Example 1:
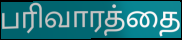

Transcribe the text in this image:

பரிவாரத்தை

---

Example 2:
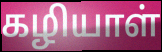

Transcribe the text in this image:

கழியாள்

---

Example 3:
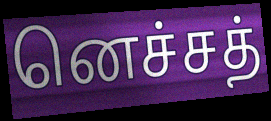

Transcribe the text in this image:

னெச்சத்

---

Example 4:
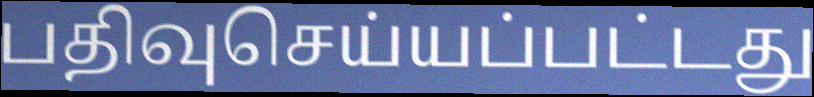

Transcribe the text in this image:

பதிவுசெய்யப்பட்டது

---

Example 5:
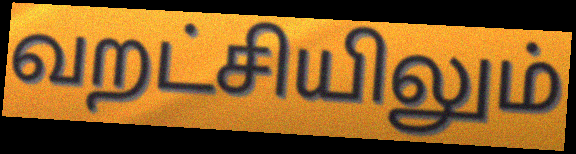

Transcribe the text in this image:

வறட்சியிலும்